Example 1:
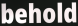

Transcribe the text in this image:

behold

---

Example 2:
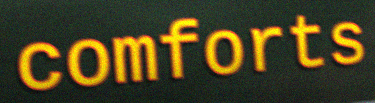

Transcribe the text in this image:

comforts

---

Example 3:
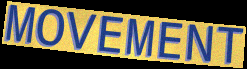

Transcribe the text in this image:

MOVEMENT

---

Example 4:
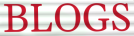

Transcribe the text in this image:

BLOGS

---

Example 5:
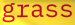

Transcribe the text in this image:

grass